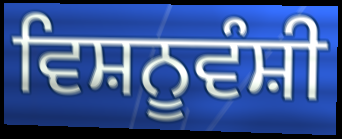
ਵਿਸ਼ਨੂਵੰਸ਼ੀ